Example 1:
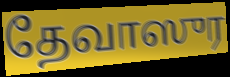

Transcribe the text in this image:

தேவாஸுர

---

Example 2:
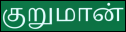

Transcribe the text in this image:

குறுமான்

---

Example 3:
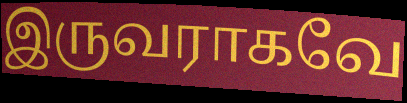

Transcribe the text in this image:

இருவராகவே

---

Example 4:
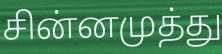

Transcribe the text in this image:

சின்னமுத்து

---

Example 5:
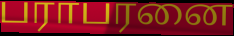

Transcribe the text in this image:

பராபரனை